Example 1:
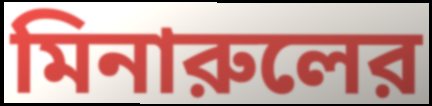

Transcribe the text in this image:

মিনারুলের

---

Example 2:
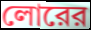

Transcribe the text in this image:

লোরের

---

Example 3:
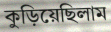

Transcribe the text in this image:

কুড়িয়েছিলাম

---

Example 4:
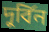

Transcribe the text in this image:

দুর্বিন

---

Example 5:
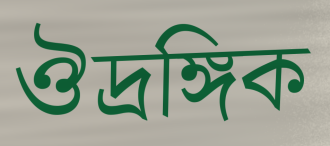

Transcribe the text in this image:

ঔদ্রঙ্গিক